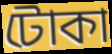
টোকা